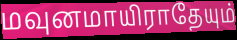
மவுனமாயிராதேயும்